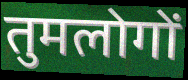
तुमलोगों